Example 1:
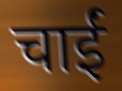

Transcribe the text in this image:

चाईं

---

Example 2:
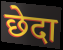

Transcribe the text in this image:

छेदा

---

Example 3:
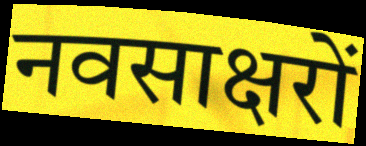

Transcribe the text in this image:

नवसाक्षरों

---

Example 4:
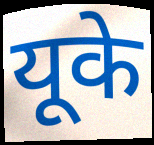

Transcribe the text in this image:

यूके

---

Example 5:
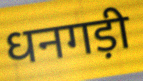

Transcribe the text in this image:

धनगड़ी